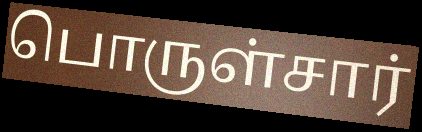
பொருள்சார்